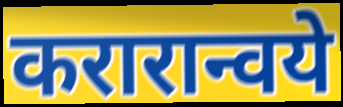
करारान्वये